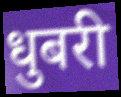
धुबरी